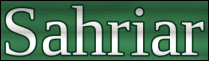
Sahriar